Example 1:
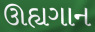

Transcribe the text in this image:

ઊહ્યગાન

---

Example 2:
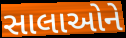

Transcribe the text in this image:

સાલાઓને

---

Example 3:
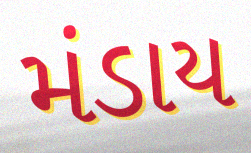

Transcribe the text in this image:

મંડાય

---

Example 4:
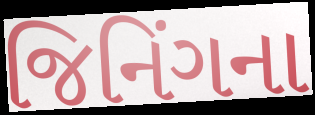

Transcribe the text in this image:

જિનિંગના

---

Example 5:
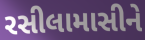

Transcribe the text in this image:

રસીલામાસીને